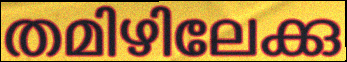
തമിഴിലേക്കു